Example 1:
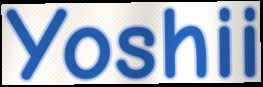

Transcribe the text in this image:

Yoshii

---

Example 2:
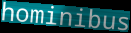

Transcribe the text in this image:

hominibus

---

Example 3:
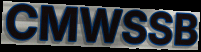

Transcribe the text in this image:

CMWSSB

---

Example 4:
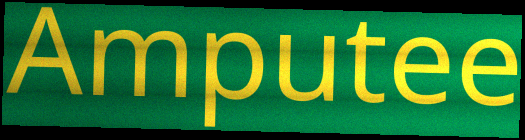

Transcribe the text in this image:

Amputee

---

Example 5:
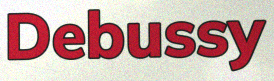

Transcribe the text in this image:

Debussy